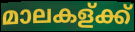
മാലകള്ക്ക്